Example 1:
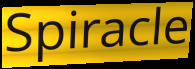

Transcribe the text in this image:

Spiracle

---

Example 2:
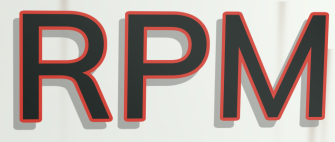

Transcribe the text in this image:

RPM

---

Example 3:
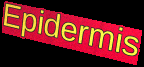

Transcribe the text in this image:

Epidermis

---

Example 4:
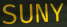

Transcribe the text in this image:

SUNY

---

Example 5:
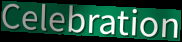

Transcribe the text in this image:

Celebration